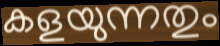
കളയുന്നതും